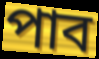
পাব